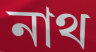
নাথ